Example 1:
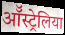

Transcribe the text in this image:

ऑॅस्ट्रेलिया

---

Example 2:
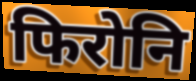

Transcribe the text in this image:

फिरोनि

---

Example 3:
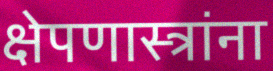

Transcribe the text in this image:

क्षेपणास्त्रांना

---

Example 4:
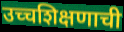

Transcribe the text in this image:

उच्चशिक्षणाची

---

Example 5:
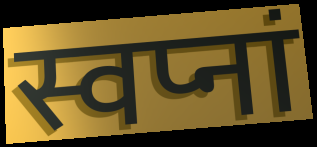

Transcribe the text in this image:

स्वप्नां